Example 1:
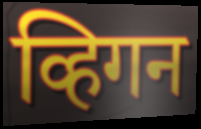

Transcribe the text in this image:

व्हिगन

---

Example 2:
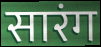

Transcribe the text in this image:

सारंग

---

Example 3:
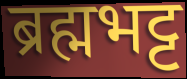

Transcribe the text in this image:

ब्रह्मभट्ट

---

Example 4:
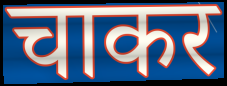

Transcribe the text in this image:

चाकर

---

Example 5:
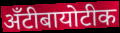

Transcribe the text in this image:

अँटीबायोटीक